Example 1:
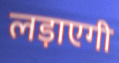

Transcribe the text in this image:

लड़ाएगी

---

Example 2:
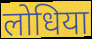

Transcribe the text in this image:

लोधिया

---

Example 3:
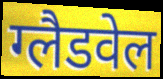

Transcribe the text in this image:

ग्लैडवेल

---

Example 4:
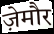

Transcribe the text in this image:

ज़ेमौर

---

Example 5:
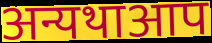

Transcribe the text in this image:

अन्यथाआप